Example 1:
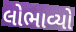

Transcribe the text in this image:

લોભાવ્યો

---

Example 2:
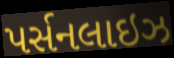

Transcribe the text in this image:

પર્સનલાઇઝ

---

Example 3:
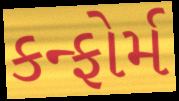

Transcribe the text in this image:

કન્ફોર્મ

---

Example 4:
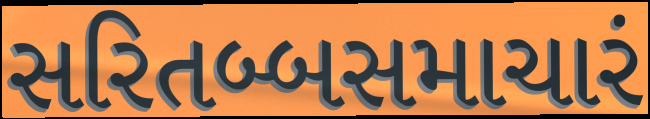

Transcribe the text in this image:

સરિતબ્બસમાચારં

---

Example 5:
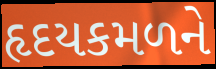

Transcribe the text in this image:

હૃદયકમળને